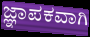
ಜ್ಞಾಪಕವಾಗಿ